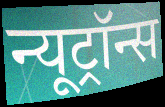
न्यूट्रॉन्स